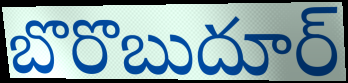
బొరొబుదూర్